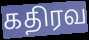
கதிரவ